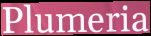
Plumeria